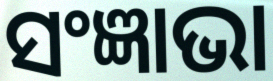
ସଂଜ୍ଞାଭା